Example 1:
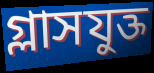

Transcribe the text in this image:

গ্লাসযুক্ত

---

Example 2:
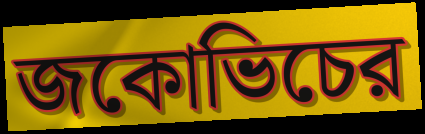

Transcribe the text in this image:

জকোভিচের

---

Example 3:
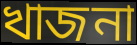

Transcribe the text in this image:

খাজনা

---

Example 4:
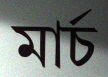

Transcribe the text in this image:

মার্চ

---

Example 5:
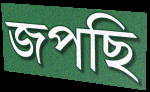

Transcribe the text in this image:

জপছি